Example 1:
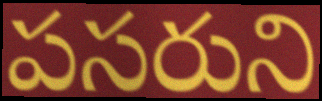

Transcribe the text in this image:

పసరుని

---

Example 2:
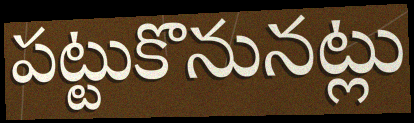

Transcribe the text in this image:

పట్టుకొనునట్లు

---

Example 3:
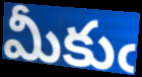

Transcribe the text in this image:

మీకుఁ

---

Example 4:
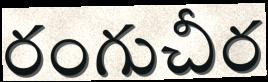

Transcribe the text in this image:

రంగుచీర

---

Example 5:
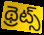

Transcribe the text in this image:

థ్రెట్స్